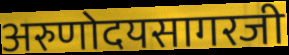
अरुणोदयसागरजी